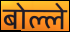
बोल्ले